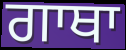
ਗਾਥਾ